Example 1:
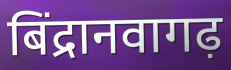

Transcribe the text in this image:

बिंद्रानवागढ़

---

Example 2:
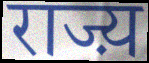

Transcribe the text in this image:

राज्य़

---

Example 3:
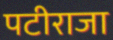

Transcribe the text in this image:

पटीराजा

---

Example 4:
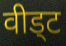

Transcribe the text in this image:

वीड्ट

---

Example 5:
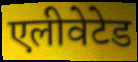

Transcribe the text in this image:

एलीवेटेड